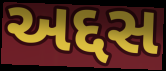
અદ્દસ